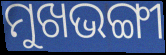
ମୁଖଭଙ୍ଗୀ